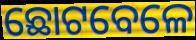
ଛୋଟବେଳେ